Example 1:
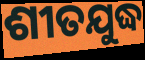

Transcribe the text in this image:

ଶୀତଯୁଦ୍ଧ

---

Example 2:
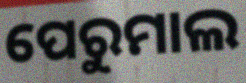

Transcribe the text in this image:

ପେରୁମାଲ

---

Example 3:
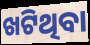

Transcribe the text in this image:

ଖଟିଥିବା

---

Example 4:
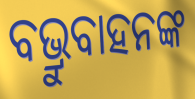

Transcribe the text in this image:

ବଭ୍ରୁବାହନଙ୍କ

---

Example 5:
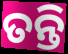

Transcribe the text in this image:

ତନ୍ତି